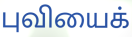
புவியைக்